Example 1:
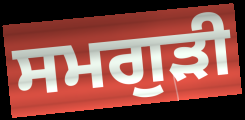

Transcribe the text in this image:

ਸਮਗੁੜੀ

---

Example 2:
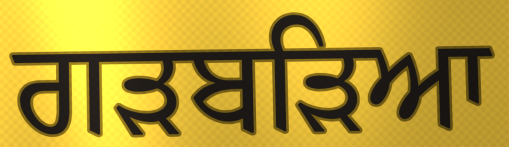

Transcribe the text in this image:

ਗੜਬੜਿਆ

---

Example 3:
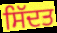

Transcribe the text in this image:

ਸਿੱਦਤ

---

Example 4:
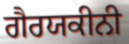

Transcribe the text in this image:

ਗੈਰਯਕੀਨੀ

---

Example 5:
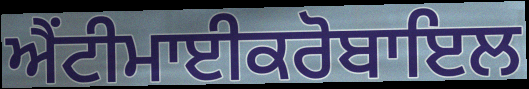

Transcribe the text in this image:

ਐਂਟੀਮਾਈਕਰੋਬਾਇਲ